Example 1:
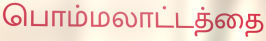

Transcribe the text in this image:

பொம்மலாட்டத்தை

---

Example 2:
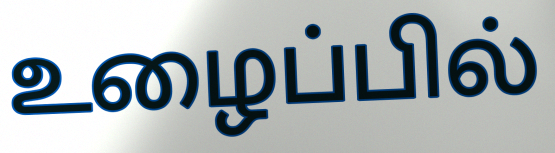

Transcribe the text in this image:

உழைப்பில்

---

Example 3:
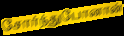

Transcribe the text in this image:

சோர்ந்துபோனான்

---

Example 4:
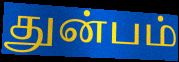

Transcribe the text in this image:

துன்பம்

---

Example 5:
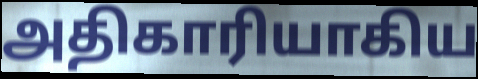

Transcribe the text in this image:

அதிகாரியாகிய